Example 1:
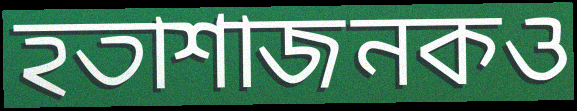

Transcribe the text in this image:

হতাশাজনকও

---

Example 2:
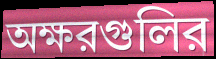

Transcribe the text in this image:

অক্ষরগুলির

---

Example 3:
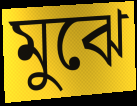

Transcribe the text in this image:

মুঝে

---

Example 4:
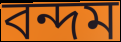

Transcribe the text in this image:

বন্দম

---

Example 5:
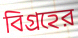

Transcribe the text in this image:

বিগ্রহের